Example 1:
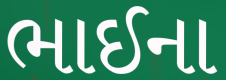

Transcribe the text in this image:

ભાઈના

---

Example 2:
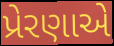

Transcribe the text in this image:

પ્રેરણાએ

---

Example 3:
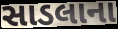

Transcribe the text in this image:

સાડલાના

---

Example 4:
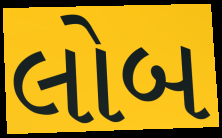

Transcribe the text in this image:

લોબ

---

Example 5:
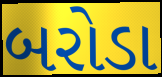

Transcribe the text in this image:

બરોડા